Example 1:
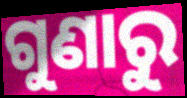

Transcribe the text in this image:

ଗୁଣାରୁ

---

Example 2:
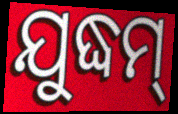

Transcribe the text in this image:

ଯୁଦ୍ଧମ୍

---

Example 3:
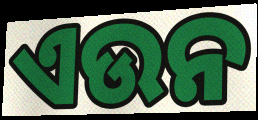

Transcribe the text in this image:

ଏଉନ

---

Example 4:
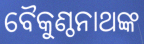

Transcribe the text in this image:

ବୈକୁଣ୍ଠନାଥଙ୍କ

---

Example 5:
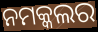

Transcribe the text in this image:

ନମକ୍କଲର